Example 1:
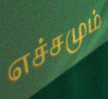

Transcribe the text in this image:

எச்சமும்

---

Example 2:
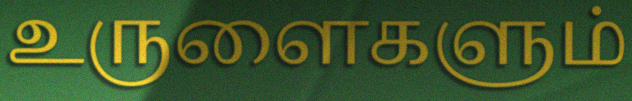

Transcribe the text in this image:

உருளைகளும்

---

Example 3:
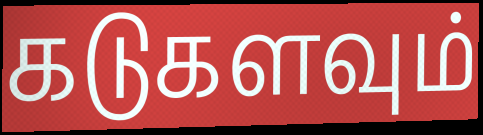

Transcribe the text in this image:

கடுகளவும்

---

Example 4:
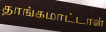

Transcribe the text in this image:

தாங்கமாட்டாள்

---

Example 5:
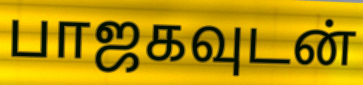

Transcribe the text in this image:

பாஜகவுடன்